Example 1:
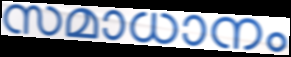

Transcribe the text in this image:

സമാധാനം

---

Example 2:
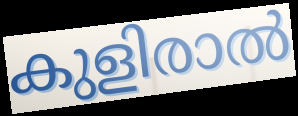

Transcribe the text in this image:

കുളിരാൽ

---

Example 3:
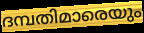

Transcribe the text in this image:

ദമ്പതിമാരെയും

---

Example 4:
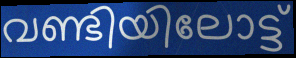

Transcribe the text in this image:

വണ്ടിയിലോട്ട്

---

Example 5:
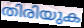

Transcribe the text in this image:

തിരിയുക